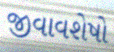
જીવાવશેષો